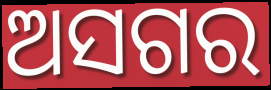
ଅସଗର